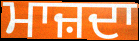
ਮਾਜ਼ਦਾ